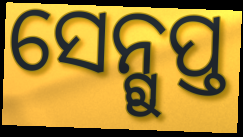
ସେନ୍ଗୁପ୍ତ